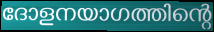
ദോളനയാഗത്തിന്റെ